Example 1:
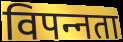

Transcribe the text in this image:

विपन्नता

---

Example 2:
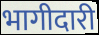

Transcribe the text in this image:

भागीदारी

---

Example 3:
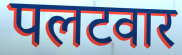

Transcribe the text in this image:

पलटवार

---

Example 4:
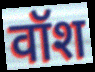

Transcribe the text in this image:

वॉश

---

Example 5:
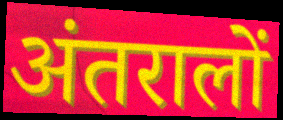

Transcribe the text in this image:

अंतरालों